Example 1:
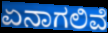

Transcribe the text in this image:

ಏನಾಗಲಿವೆ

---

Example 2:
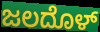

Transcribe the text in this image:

ಜಲದೊಳ್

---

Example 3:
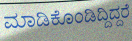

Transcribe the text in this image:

ಮಾಡಿಕೊಂಡಿದ್ದಿದ್ದರೆ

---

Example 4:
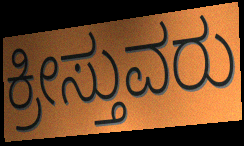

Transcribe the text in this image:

ಕ್ರೀಸ್ತುವರು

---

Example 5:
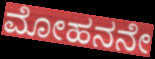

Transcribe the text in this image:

ಮೋಹನನೇ